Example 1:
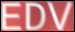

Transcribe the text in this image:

EDV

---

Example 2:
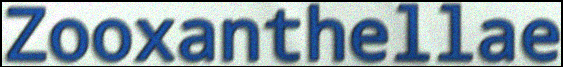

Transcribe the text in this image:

Zooxanthellae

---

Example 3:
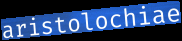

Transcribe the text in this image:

aristolochiae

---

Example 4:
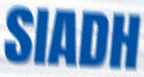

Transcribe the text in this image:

SIADH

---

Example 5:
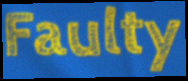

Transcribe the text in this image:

Faulty